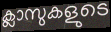
ക്ലാസുകളുടെ